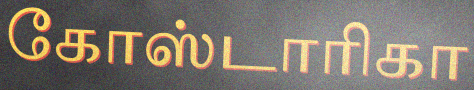
கோஸ்டாரிகா